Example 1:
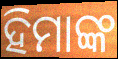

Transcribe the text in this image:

ହିମାଙ୍କ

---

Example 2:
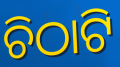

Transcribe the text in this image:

ଚିଠାଟି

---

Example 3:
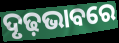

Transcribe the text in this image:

ଦୃଢ଼ଭାବରେ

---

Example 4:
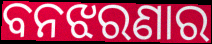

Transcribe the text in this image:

ବନଝରଣାର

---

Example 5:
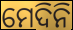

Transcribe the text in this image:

ମେଦିନି